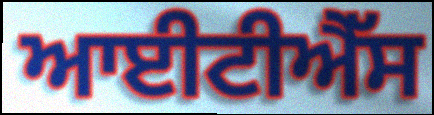
ਆਈਟੀਐੱਸ